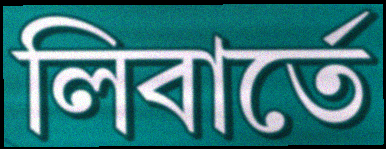
লিবার্তে